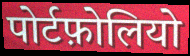
पोर्टफ़ोलियो